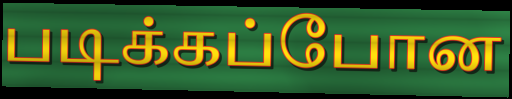
படிக்கப்போன